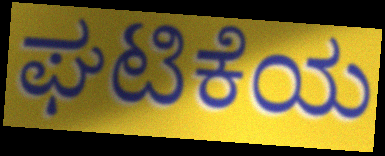
ಘಟಿಕೆಯ